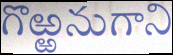
గొఱ్ఱనుగాని